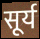
सूर्य